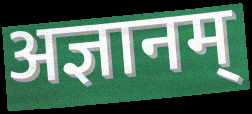
अज्ञानम्